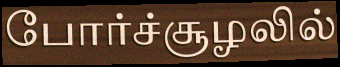
போர்ச்சூழலில்